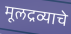
मूलद्रव्याचे